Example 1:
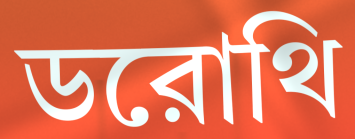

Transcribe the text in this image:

ডরোথি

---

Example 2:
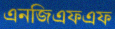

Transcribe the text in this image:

এনজিএফএফ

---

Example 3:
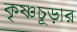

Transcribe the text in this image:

কৃষ্ণচূড়ার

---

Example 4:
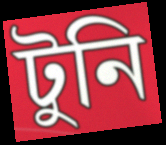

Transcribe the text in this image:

টুনি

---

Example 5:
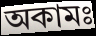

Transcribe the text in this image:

অকামঃ